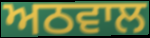
ਅਠਵਾਲ